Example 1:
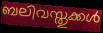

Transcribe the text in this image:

ബലിവസ്തുക്കൾ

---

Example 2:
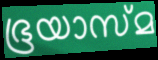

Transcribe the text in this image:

ഭൂയാസ്മ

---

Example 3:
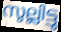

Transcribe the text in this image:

സുല്ലിട്ടു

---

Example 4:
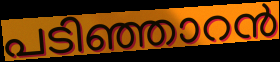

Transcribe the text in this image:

പടിഞ്ഞാറൻ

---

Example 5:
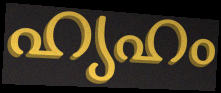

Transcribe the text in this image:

ഹ്യഹം